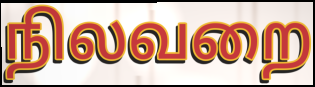
நிலவறை